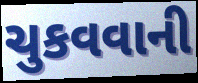
ચુકવવાની